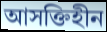
আসক্তিহীন